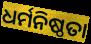
ଧର୍ମନିଷ୍ଠତା